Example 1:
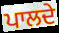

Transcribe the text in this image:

ਪਾਲਦੇ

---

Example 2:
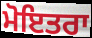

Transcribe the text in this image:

ਮੋਇਤਰਾ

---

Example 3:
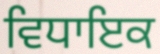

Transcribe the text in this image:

ਵਿਧਾਇਕ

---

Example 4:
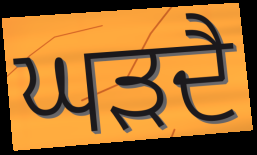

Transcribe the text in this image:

ਘੜਦੈ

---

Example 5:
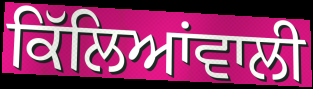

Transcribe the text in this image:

ਕਿੱਲਿਆਂਵਾਲੀ